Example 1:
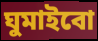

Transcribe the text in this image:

ঘুমাইবো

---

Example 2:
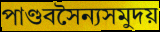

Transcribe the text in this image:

পাণ্ডবসৈন্যসমুদয়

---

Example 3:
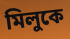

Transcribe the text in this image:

মিলুকে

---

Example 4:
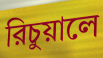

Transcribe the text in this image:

রিচুয়ালে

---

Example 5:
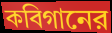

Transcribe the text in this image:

কবিগানের